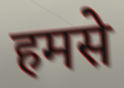
हमसे